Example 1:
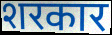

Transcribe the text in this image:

शरकार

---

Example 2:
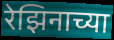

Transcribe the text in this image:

रेझिनाच्या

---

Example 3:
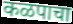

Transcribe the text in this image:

कळपाचा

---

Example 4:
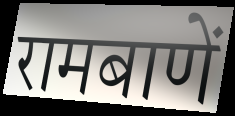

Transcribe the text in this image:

रामबाणें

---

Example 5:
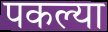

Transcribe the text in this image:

पकल्या